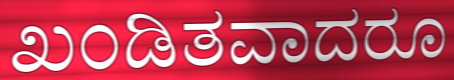
ಖಂಡಿತವಾದರೂ